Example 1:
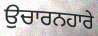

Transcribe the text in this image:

ਉਚਾਰਨਹਾਰੇ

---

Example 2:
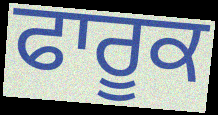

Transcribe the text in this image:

ਫਾਰੂਕ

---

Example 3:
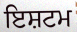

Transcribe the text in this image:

ਇਸ਼ਟਮ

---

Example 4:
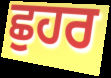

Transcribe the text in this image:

ਛੁਹਰ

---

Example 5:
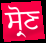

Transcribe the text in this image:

ਸ੍ਰੋਣ